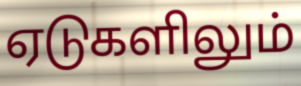
ஏடுகளிலும்